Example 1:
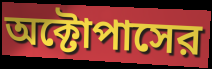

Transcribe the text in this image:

অক্টোপাসের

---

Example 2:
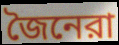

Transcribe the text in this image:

জৈনেরা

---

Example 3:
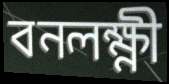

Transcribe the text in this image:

বনলক্ষ্ণী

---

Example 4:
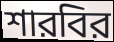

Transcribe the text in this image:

শারবির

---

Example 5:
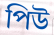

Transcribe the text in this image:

পিউ